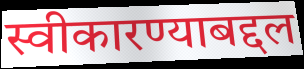
स्वीकारण्याबद्दल